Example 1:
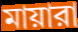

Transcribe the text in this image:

মায়ারা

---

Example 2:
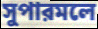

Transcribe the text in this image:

সুপারমলে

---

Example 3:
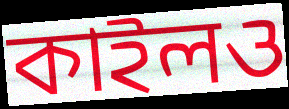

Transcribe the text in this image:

কাইলও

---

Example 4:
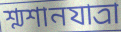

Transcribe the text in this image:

শ্মশানযাত্রা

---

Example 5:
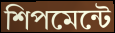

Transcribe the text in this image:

শিপমেন্টে